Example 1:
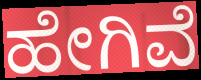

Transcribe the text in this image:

ಹೇಗಿವೆ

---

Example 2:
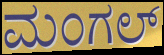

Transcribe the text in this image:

ಮಂಗಲ್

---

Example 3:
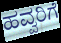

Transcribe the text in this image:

ಹವ್ವರಿಗೆ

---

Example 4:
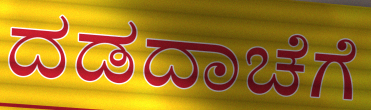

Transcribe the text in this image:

ದಡದಾಚೆಗೆ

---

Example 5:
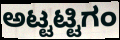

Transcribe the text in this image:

ಅಟ್ಟಟ್ಟಿಗಂ